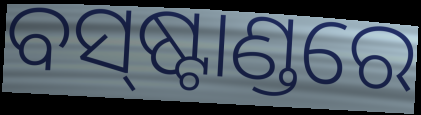
ବସ୍‌ଷ୍ଟାଣ୍ଡରେ